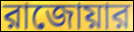
রাজোয়ার